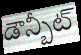
డౌన్బీట్